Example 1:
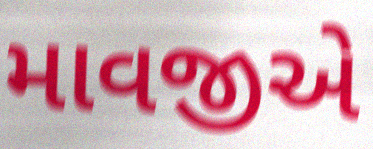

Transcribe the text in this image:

માવજીએ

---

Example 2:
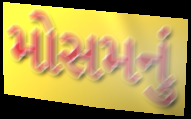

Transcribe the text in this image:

મોસમનું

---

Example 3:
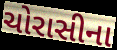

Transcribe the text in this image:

ચોરાસીના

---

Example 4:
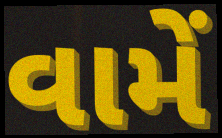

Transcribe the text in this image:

વામેં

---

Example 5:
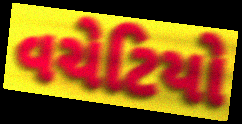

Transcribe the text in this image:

વચેટિયો